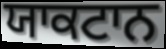
ਯਾਕਟਾਨ